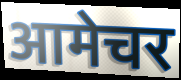
आमेचर